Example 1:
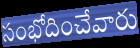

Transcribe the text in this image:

సంభోదించేవారు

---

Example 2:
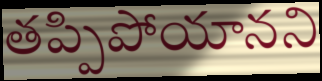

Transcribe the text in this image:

తప్పిపోయానని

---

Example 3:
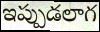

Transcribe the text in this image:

ఇప్పుడలాగ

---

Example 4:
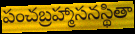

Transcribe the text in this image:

పంచబ్రహ్మాసనస్థితా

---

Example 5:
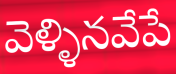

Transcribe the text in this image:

వెళ్ళినవేపే